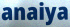
anaiya